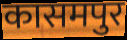
कासमपुर